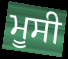
ਮੂਸੀ